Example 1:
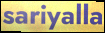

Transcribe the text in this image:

sariyalla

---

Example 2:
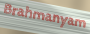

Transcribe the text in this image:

Brahmanyam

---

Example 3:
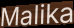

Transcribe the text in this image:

Malika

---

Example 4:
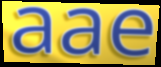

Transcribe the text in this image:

aae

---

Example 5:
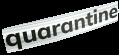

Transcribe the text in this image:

quarantine